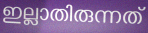
ഇല്ലാതിരുന്നത്